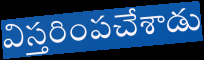
విస్తరింపచేశాడు